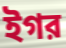
ইগর